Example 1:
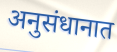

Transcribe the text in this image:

अनुसंधानात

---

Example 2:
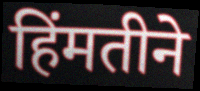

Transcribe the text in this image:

हिंमतीने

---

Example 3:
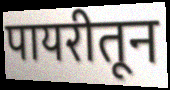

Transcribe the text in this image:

पायरीतून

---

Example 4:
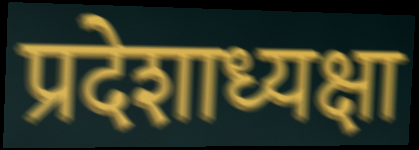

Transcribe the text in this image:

प्रदेशाध्यक्षा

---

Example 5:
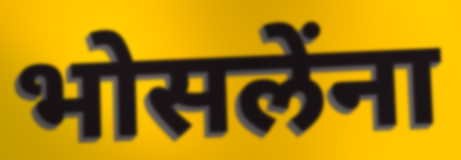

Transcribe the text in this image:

भोसलेंना